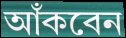
আঁকবেন